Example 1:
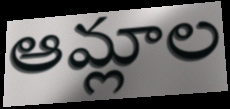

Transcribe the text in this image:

ఆమ్లాల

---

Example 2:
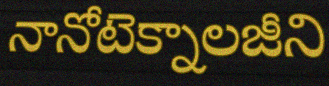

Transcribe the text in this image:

నానోటెక్నాలజీని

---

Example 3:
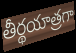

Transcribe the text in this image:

తీర్థయాత్రగా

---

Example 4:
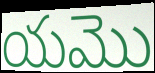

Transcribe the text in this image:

యమొ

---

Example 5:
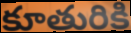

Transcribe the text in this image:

కూతురికి